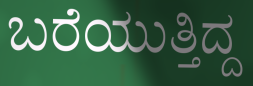
ಬರೆಯುತ್ತಿದ್ದ